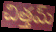
చిత్తమ్